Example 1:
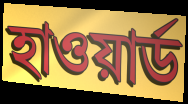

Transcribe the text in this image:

হাওয়ার্ড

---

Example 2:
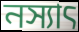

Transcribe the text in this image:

নস্যাৎ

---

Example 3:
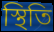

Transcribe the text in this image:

স্থিতি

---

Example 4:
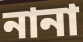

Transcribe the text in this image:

নানা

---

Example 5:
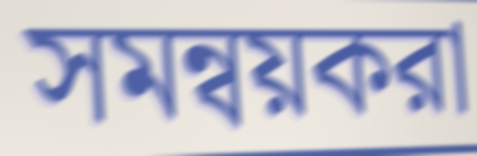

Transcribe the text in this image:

সমন্বয়করা